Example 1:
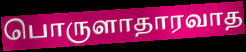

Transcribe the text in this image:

பொருளாதாரவாத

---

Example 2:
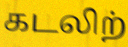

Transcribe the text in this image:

கடலிற்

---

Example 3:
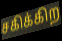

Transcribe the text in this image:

சகிக்கிற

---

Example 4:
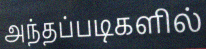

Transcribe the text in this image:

அந்தப்படிகளில்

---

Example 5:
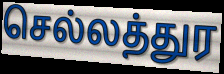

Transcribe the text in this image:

செல்லத்துர